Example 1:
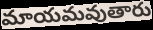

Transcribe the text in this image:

మాయమవుతారు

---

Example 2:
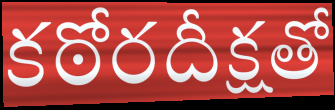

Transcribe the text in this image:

కఠోరదీక్షతో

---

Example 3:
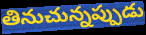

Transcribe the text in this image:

తినుచున్నప్పుడు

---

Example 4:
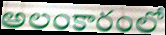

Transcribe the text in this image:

అలంకారంలో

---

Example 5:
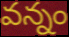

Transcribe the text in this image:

వన్నం